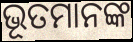
ଭୂତମାନଙ୍କ